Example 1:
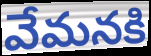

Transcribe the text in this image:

వేమనకి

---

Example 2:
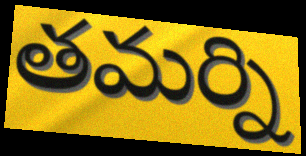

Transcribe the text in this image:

తమర్ని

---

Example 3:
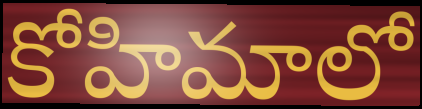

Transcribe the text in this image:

కోహిమాలో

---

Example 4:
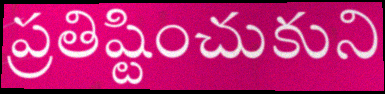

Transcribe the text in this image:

ప్రతిష్టించుకుని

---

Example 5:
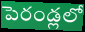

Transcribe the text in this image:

పెరండ్లలో